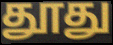
தூது